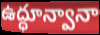
ఉద్ధూన్వానా